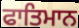
ਫਾਤਿਮਾਨ